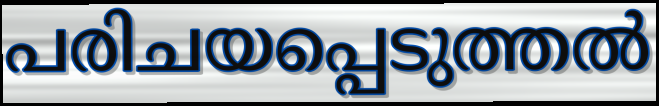
പരിചയപ്പെടുത്തൽ